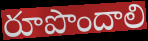
రూపొందాలి